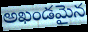
అఖండమైన